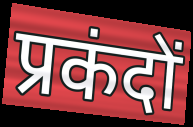
प्रकंदों